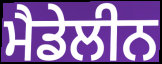
ਮੈਡੇਲੀਨ